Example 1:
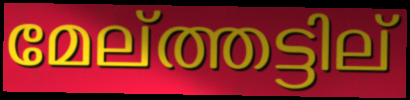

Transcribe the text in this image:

മേല്ത്തട്ടില്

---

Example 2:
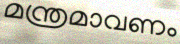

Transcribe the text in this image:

മന്ത്രമാവണം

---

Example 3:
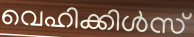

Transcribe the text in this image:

വെഹിക്കിൾസ്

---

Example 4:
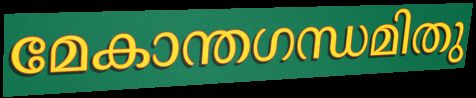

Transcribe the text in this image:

മേകാന്തഗന്ധമിതു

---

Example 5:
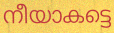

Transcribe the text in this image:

നീയാകട്ടെ